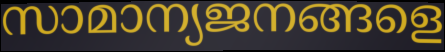
സാമാന്യജനങ്ങളെ